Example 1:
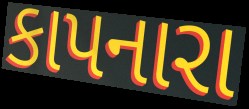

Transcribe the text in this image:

કાપનારા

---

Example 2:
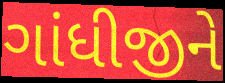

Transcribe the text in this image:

ગાંધીજીને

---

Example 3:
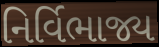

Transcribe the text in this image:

નિર્વિભાજ્ય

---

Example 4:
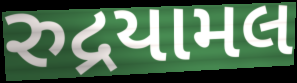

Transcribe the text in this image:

રુદ્રયામલ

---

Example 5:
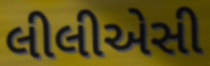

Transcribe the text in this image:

લીલીએસી